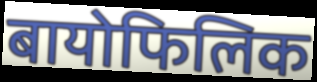
बायोफिलिक